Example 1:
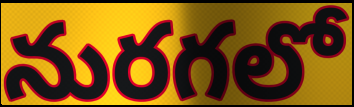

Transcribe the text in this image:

నురగలో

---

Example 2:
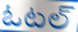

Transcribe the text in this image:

ఓటల్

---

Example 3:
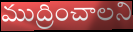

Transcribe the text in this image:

ముద్రించాలని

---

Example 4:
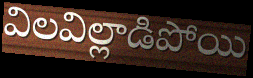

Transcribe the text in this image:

విలవిల్లాడిపోయి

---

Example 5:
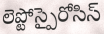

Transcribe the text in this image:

లెప్టోస్పైరోసిస్